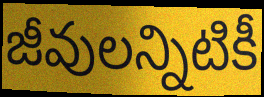
జీవులన్నిటికీ